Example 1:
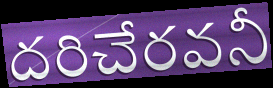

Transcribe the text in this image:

దరిచేరవనీ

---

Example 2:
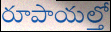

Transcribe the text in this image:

రూపాయల్తో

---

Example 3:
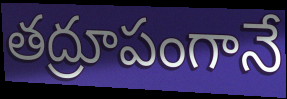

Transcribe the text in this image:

తద్రూపంగానే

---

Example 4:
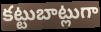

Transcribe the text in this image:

కట్టుబాట్లుగా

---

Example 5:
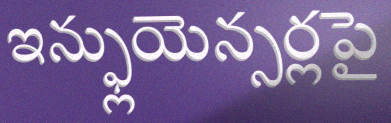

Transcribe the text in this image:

ఇన్ఫ్లుయెన్సర్లపై